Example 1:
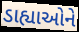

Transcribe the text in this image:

ડાહ્યાઓને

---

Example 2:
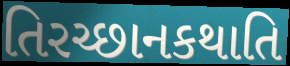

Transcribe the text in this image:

તિરચ્છાનકથાતિ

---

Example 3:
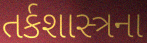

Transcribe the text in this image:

તર્કશાસ્ત્રના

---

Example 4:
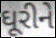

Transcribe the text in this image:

ઘૂરીને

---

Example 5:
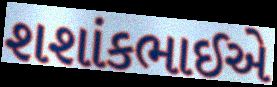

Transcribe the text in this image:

શશાંકભાઈએ